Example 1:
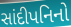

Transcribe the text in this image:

સાંદીપનિનો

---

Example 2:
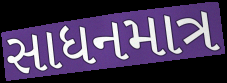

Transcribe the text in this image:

સાધનમાત્ર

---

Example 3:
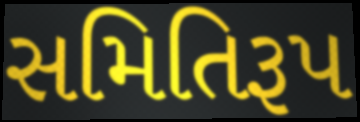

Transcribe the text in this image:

સમિતિરૂપ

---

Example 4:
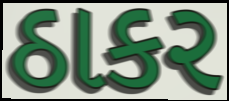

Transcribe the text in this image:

ઠાકર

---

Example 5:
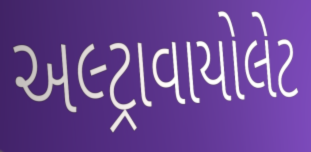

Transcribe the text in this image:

અલ્ટ્રાવાયોલેટ